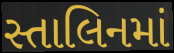
સ્તાલિનમાં